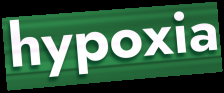
hypoxia